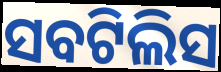
ସବଟିଲିସ